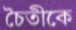
চৈতীকে